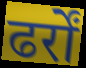
ढर्रों